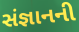
સંજ્ઞાનની